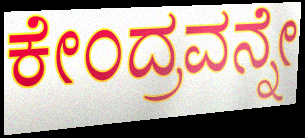
ಕೇಂದ್ರವನ್ನೇ